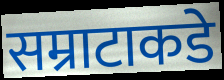
सम्राटाकडे